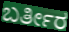
ಬರ್ತೀರ